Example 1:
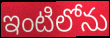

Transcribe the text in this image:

ఇంటిలోను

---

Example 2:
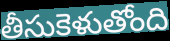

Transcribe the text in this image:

తీసుకెళుతోంది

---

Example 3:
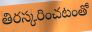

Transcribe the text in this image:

తిరస్కరించటంతో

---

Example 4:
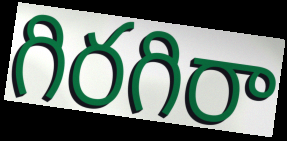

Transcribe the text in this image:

గిరగిరా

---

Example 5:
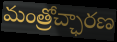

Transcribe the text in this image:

మంత్రోచ్ఛారణ